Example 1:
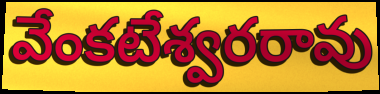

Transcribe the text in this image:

వేంకటేశ్వరరావు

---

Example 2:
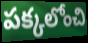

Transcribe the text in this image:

పక్కలోంచి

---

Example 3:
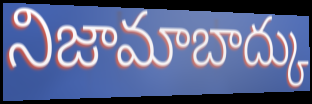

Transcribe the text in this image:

నిజామాబాద్కు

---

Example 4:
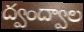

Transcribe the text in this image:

ద్వంద్వాల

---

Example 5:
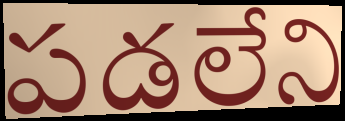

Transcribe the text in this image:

పడలేని